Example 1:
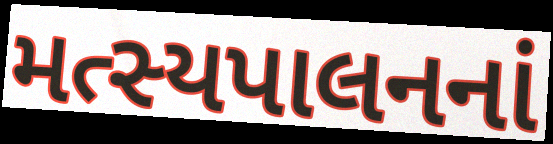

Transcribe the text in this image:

મત્સ્યપાલનનાં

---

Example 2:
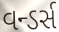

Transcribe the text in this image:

વન્ડર્સ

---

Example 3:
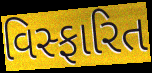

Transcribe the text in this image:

વિસ્ફારિત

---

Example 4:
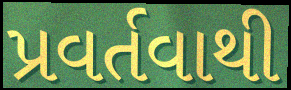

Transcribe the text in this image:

પ્રવર્તવાથી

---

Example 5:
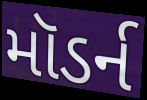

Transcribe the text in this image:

મૉડર્ન